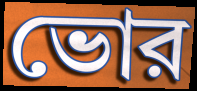
ভোর